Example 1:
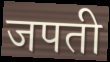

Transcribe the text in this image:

जपती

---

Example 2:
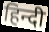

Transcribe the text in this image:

हिन्दी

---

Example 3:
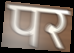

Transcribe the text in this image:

पर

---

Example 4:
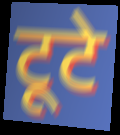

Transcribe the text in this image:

टूटे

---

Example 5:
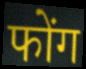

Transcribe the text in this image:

फोंग